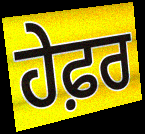
ਹੇਫ਼ਰ